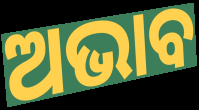
ଅଭାବ